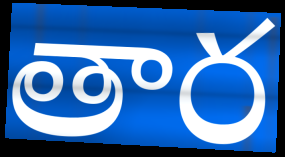
తార